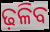
ଢ଼ଳିବ